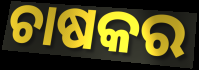
ଚାଷକର